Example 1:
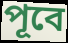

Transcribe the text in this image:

পূবে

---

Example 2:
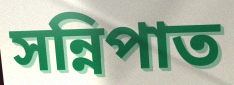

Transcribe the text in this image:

সন্নিপাত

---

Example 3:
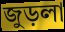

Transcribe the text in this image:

জুড়লা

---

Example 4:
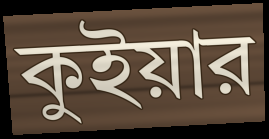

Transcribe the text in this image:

কুইয়ার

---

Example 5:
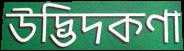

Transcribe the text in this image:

উদ্ভিদকণা